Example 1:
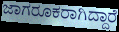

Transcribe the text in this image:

ಜಾಗರೂಕರಾಗಿದ್ದಾರೆ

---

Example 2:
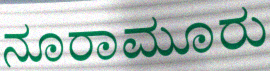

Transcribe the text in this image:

ನೂರಾಮೂರು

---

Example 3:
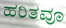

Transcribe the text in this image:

ಹರಿತವೂ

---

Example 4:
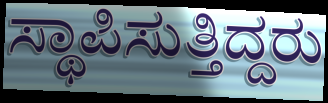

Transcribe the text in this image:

ಸ್ಥಾಪಿಸುತ್ತಿದ್ದರು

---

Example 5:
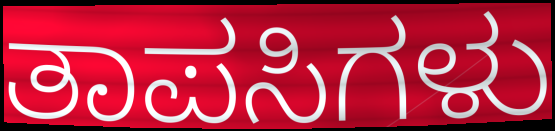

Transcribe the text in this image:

ತಾಪಸಿಗಳು